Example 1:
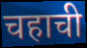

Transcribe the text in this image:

चहाची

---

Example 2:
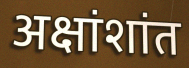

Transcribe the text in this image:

अक्षांशांत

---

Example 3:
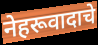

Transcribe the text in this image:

नेहरूवादाचे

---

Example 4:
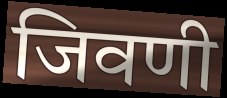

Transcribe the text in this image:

जिवणी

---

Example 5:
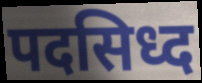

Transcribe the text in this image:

पदसिध्द